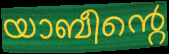
യാബീന്റെ